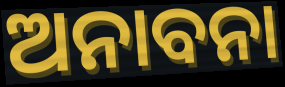
ଅନାବନା